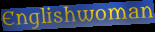
Englishwoman